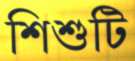
শিশুটি